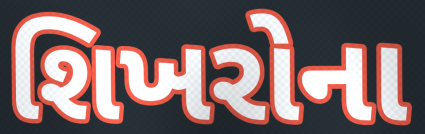
શિખરોના